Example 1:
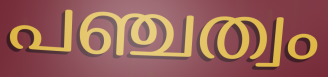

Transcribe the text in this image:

പഞ്ചത്വം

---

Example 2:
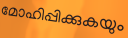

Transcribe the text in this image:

മോഹിപ്പിക്കുകയും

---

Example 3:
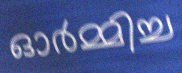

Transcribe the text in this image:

ഓർമ്മിച്ച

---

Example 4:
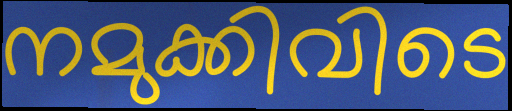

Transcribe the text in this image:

നമുക്കിവിടെ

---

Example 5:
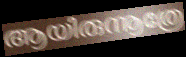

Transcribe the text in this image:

ആയിരുന്നൂത്രേ